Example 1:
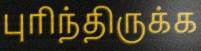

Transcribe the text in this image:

புரிந்திருக்க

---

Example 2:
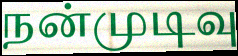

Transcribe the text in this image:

நன்முடிவு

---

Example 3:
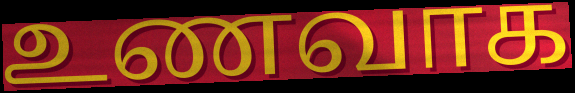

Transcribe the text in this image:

உணவாக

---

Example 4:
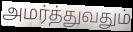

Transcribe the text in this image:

அமர்த்துவதும்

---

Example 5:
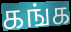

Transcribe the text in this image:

கங்க